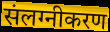
संलग्‍नीकरण